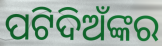
ପଟିଦିଅଁଙ୍କର